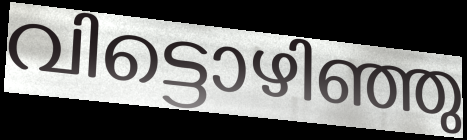
വിട്ടൊഴിഞ്ഞു